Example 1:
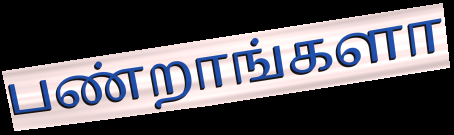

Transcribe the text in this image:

பண்றாங்களா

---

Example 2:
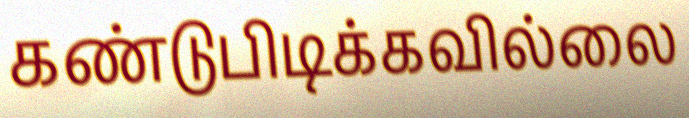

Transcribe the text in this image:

கண்டுபிடிக்கவில்லை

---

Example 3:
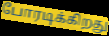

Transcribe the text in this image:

போரடிக்கிறது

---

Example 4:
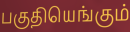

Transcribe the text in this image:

பகுதியெங்கும்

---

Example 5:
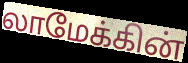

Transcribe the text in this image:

லாமேக்கின்